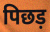
पिछड़